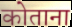
कोताना